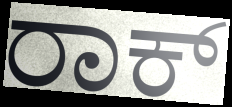
ರಾಕ್